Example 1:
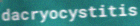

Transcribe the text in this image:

dacryocystitis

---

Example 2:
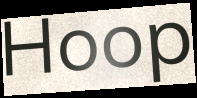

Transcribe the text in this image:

Hoop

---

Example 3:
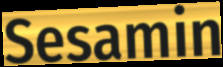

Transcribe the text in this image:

Sesamin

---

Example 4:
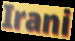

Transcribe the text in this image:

Irani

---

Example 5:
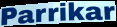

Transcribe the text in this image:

Parrikar